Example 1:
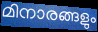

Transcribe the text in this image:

മിനാരങ്ങളും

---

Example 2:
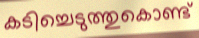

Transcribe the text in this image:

കടിച്ചെടുത്തുകൊണ്ട്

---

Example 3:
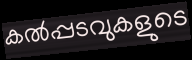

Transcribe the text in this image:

കൽപ്പടവുകളുടെ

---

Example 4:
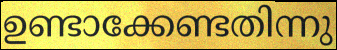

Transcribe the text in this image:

ഉണ്ടാക്കേണ്ടതിന്നു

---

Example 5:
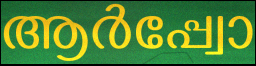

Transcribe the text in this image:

ആർപ്പ്വോ